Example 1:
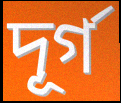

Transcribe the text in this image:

দূৰ্গ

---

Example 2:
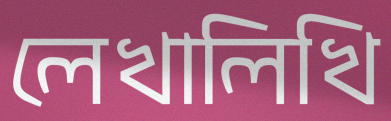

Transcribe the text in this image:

লেখালিখি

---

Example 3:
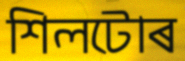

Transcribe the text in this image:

শিলটোৰ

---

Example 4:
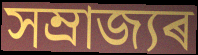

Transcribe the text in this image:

সম্ৰাজ্যৰ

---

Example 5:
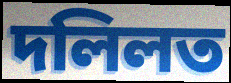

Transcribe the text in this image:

দলিলত